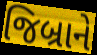
જિબ્રાને